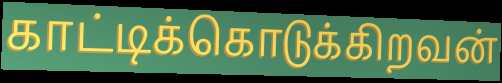
காட்டிக்கொடுக்கிறவன்